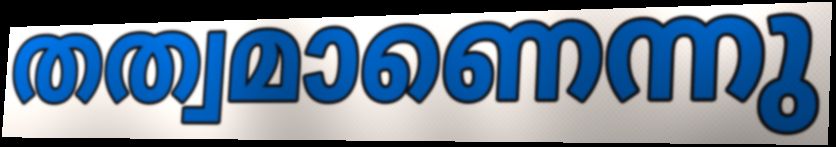
തത്വമാണെന്നു